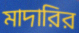
মাদারির